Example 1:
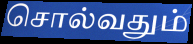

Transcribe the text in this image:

சொல்வதும்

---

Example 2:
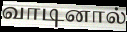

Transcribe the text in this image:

வாடினால்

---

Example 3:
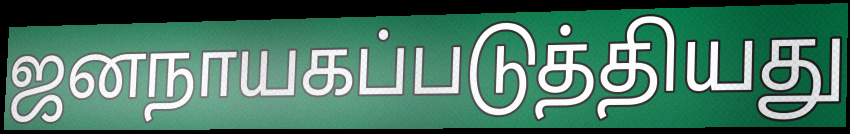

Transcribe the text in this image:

ஜனநாயகப்படுத்தியது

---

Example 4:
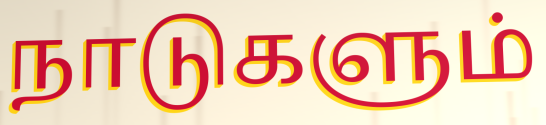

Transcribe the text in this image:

நாடுகளும்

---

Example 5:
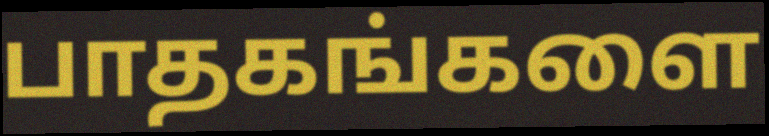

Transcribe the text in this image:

பாதகங்களை